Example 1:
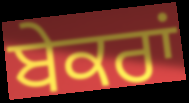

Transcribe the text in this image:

ਬੇਕਰਾਂ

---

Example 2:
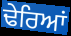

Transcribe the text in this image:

ਢੇਰਿਆਂ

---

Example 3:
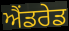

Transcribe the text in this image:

ਐਂਡਰੇਡ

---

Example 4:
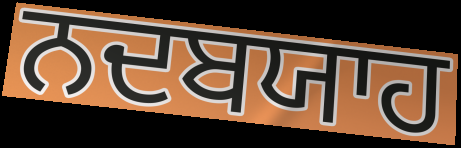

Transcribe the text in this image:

ਨਦਬਯਾਹ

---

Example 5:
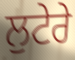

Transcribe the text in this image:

ਲੁਟੇਰੇ